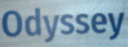
Odyssey